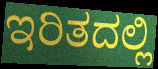
ಇರಿತದಲ್ಲಿ